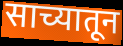
साच्यातून